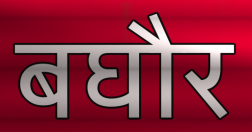
बघौर